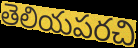
తెలియపరచి